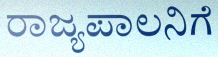
ರಾಜ್ಯಪಾಲನಿಗೆ